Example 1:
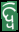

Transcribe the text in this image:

ଦ୍ଵି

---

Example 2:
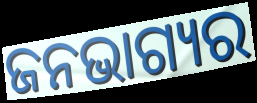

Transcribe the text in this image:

ଜନଭାଗ୍ୟର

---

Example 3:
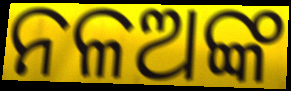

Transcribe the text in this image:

ନଳଅଙ୍କ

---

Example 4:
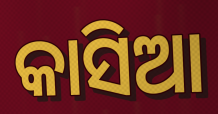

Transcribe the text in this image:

କାସିଆ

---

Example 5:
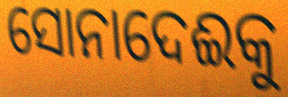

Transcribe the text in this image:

ସୋନାଦେଈକୁ